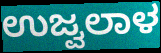
ಉಜ್ವಲಾಳ